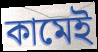
কামেই